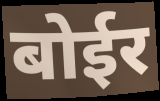
बोईर